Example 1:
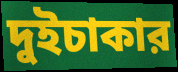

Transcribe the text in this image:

দুইচাকার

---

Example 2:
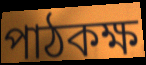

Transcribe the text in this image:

পাঠকক্ষ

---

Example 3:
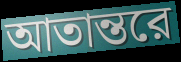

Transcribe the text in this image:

আতান্তরে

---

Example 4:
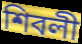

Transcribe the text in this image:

শিবলী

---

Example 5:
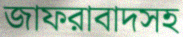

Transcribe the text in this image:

জাফরাবাদসহ